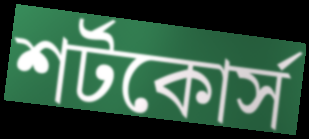
শর্টকোর্স